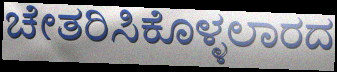
ಚೇತರಿಸಿಕೊಳ್ಳಲಾರದ